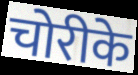
चोरीके